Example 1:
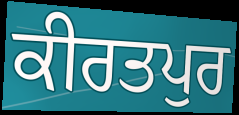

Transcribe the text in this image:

ਕੀਰਤਪੁਰ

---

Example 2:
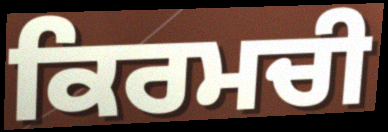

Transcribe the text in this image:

ਕਿਰਮਚੀ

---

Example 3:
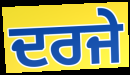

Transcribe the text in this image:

ਦਰਜੇ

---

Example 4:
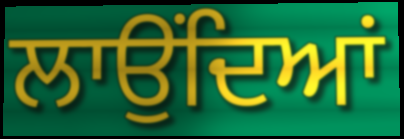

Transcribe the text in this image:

ਲਾਉਂਦਿਆਂ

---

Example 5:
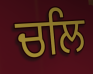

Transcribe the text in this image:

ਚਲਿ